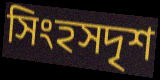
সিংহসদৃশ